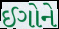
ઈગોને